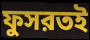
ফুসরতই